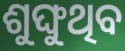
ଶୁଙ୍ଘୁଥିବ